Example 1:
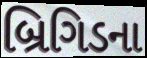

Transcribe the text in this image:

બ્રિગિડના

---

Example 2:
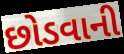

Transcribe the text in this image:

છોડવાની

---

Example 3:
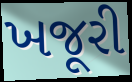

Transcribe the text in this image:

ખજૂરી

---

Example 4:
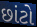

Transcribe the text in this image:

છાંટો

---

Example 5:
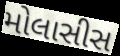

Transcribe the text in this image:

મોલાસીસ